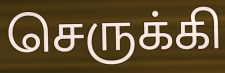
செருக்கி